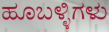
ಹೂಬಳ್ಳಿಗಳು